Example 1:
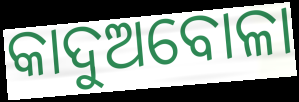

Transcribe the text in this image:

କାଦୁଅବୋଳା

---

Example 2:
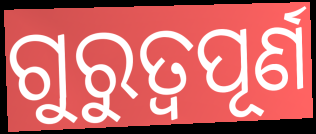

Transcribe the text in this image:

ଗୁରୁତ୍ୱପୂର୍ଣ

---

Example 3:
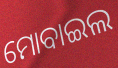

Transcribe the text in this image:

ମୋବାଇଲ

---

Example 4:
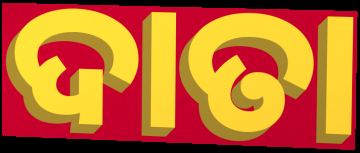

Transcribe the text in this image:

ଦାତା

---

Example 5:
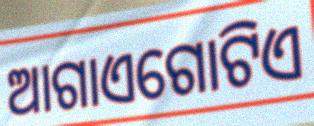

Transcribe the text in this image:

ଆଗାଏଗୋଟିଏ